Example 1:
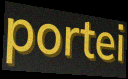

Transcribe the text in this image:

portei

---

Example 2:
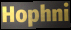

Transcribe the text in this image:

Hophni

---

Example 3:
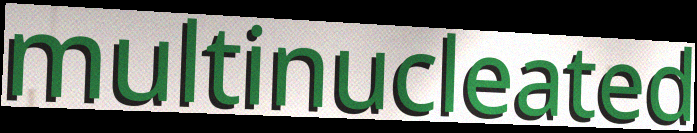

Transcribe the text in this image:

multinucleated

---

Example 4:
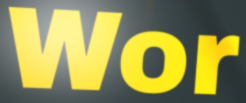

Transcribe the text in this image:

Wor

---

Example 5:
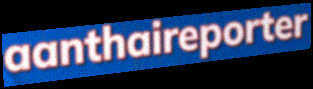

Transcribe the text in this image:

aanthaireporter